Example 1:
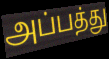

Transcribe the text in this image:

அப்பத்து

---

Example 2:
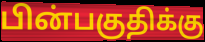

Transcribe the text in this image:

பின்பகுதிக்கு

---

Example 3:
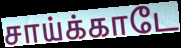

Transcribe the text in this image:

சாய்க்காடே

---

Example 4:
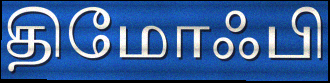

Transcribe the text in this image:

திமோஃபி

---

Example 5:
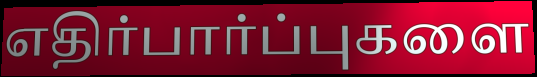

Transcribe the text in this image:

எதிர்பார்ப்புகளை